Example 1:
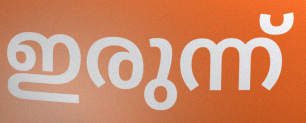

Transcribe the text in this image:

ഇരുന്ന്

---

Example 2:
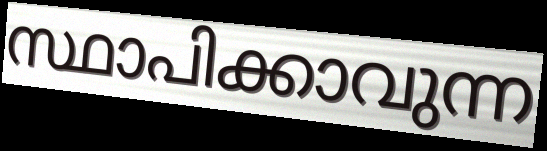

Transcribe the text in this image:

സ്ഥാപിക്കാവുന്ന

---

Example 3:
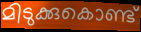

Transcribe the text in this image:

മിടുക്കുകൊണ്ട്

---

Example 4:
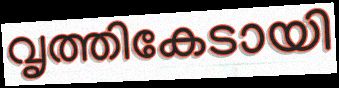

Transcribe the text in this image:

വൃത്തികേടായി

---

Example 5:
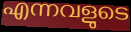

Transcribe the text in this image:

എന്നവളുടെ